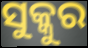
ସୁକ୍କୁର